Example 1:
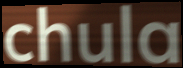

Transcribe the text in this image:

chula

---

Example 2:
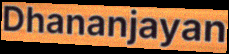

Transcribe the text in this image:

Dhananjayan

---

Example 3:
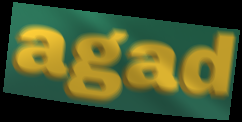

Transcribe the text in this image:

agad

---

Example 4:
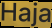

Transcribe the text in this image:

Haja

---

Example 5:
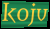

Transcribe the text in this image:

koju